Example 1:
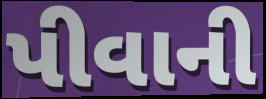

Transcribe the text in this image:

પીવાની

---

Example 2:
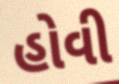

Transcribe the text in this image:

હોવી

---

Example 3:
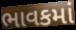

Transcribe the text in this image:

ભાવકમાં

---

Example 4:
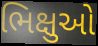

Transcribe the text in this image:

ભિક્ષુઓ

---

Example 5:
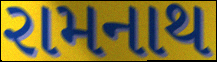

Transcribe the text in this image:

રામનાથ